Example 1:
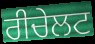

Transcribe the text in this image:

ਰੀਚੇਲਟ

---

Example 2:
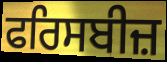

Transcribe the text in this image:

ਫਰਿਸਬੀਜ਼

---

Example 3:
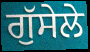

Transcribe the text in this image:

ਗੁੱਸੇਲੇ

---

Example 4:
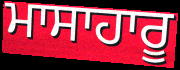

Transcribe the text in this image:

ਮਾਸਾਹਾਰੂ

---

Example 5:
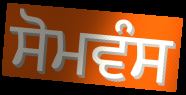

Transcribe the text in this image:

ਸੋਮਵੰਸ